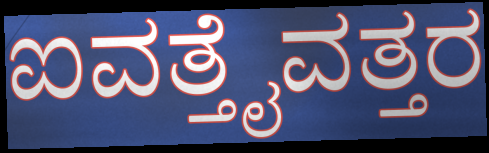
ಐವತ್ತೈವತ್ತರ